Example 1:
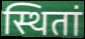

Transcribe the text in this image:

स्थितां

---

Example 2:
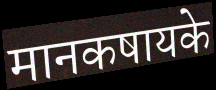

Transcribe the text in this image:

मानकषायके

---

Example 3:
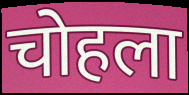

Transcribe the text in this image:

चोहला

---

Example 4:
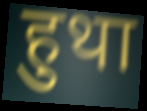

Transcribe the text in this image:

हुथा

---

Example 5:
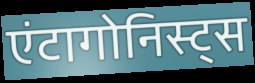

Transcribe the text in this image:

एंटागोनिस्ट्स